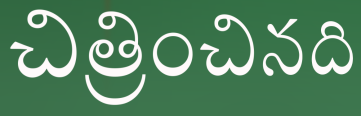
చిత్రించినది